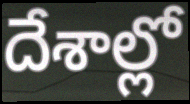
దేశాల్లో